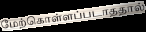
மேற்கொள்ளப்படாததால்